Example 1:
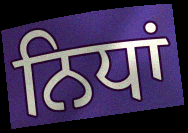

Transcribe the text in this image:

ਨਿਧਾਂ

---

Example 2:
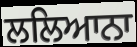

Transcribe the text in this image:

ਲਲਿਆਨਾ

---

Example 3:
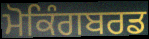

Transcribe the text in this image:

ਮੋਕਿੰਗਬਰਡ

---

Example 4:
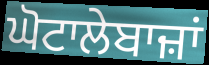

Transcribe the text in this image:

ਘੋਟਾਲੇਬਾਜ਼ਾਂ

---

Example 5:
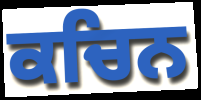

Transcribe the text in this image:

ਕਚਿਨ